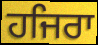
ਹਜਿਰਾ